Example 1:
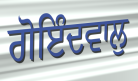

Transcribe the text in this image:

ਗੋਇੰਦਵਾਲੁ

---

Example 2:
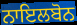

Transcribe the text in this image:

ਨਾਇਲਬੋਨ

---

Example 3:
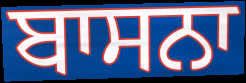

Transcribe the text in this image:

ਬਾਸਨਾ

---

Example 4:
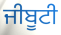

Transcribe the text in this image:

ਜੀਬੂਟੀ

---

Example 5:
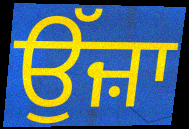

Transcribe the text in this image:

ਉੱਜ਼ਾ